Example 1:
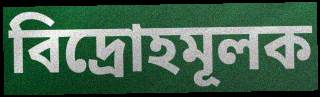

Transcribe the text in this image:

বিদ্রোহমূলক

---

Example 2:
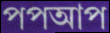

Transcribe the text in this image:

পপআপ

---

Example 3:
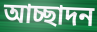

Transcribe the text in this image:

আচ্ছাদন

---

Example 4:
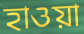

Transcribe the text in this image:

হাওয়া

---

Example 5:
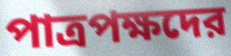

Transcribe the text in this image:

পাত্রপক্ষদের